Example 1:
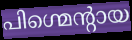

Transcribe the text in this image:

പിഗ്മെന്റായ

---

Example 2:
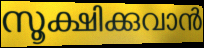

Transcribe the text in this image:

സൂക്ഷിക്കുവാൻ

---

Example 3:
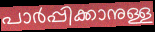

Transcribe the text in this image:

പാർപ്പിക്കാനുള്ള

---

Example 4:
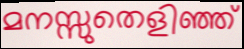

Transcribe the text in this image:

മനസ്സുതെളിഞ്ഞ്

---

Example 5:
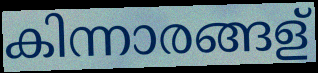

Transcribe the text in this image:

കിന്നാരങ്ങള്